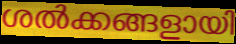
ശൽക്കങ്ങളായി